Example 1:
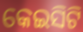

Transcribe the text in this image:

କେଇସିଟି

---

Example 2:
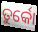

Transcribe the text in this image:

ତୁର୍କୋ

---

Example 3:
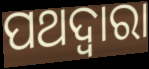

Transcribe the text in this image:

ପଥଦ୍ଵାରା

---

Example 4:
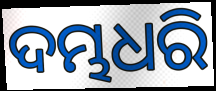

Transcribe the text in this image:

ଦମ୍ଭଧରି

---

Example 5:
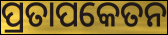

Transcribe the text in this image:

ପ୍ରତାପକେତନ